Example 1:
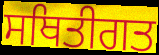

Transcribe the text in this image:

ਸਥਿਤੀਗਤ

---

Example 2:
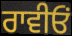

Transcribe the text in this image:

ਰਾਵੀਓਂ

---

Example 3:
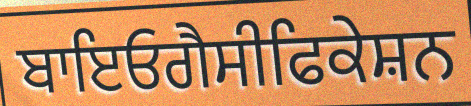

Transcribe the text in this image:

ਬਾਇਓਗੈਸੀਫਿਕੇਸ਼ਨ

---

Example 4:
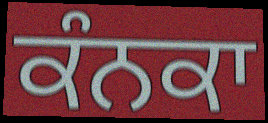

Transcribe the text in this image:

ਕੰਨਕਾ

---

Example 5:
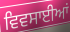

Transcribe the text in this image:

ਵਿਵਸਾਈਆਂ